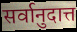
सर्वानुदात्त